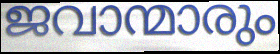
ജവാന്മാരും